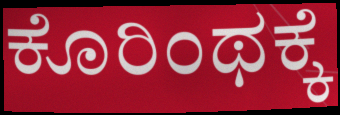
ಕೊರಿಂಥಕ್ಕೆ